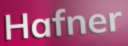
Hafner